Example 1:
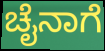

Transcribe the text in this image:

ಚೈನಾಗೆ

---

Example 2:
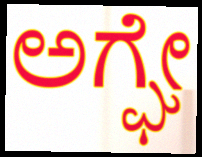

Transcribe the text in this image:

ಅಗ್ಘೇ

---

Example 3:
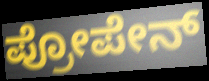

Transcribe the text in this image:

ಪ್ರೋಪೇನ್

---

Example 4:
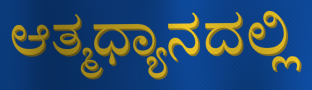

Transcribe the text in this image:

ಆತ್ಮಧ್ಯಾನದಲ್ಲಿ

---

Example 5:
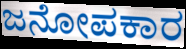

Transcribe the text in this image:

ಜನೋಪಕಾರ